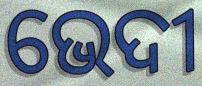
ଭେଦୀ